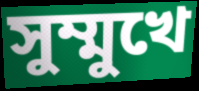
সুম্মুখে